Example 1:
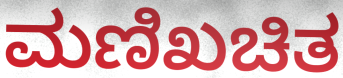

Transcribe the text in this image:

ಮಣಿಖಚಿತ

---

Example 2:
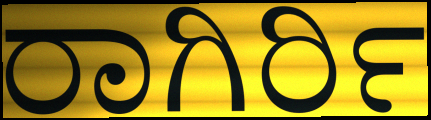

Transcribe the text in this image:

ರಾಗಿರ್ರಿ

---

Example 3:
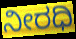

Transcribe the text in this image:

ನೀರಧಿ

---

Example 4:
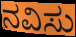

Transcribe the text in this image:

ನವಿಸು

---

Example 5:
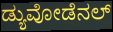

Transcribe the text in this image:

ಡ್ಯುವೋಡೆನಲ್